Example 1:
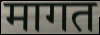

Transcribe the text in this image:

मागत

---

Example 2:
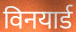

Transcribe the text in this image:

विनयार्ड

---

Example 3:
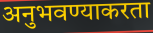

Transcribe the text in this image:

अनुभवण्याकरता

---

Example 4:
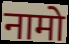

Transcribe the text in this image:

नामो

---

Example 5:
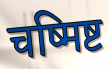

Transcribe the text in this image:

चष्मिष्ट